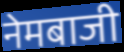
नेमबाजी